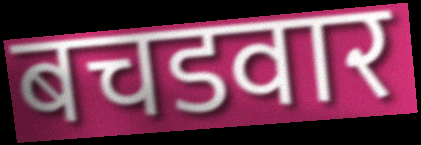
बचडवार